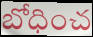
బోధించ